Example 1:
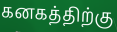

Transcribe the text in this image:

கனகத்திற்கு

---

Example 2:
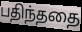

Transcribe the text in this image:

பதிந்ததை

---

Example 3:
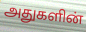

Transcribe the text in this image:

அதுகளின்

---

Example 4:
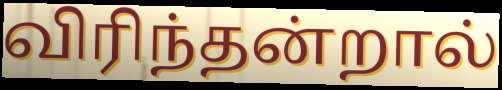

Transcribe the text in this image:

விரிந்தன்றால்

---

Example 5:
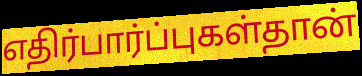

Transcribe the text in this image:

எதிர்பார்ப்புகள்தான்